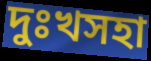
দুঃখসহা